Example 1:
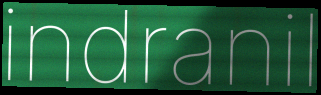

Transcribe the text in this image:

indranil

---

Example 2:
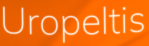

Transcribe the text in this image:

Uropeltis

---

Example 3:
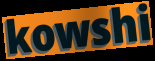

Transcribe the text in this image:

kowshi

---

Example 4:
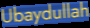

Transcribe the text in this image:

Ubaydullah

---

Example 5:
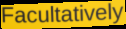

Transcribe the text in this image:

Facultatively